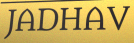
JADHAV